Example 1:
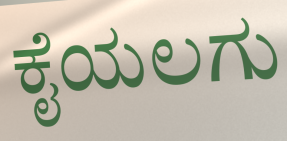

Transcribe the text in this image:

ಕೈಯಲಗು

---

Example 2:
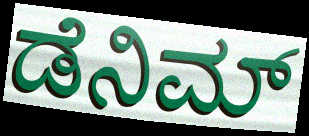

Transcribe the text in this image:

ಡೆನಿಮ್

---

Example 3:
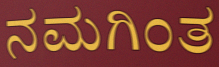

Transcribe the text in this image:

ನಮಗಿಂತ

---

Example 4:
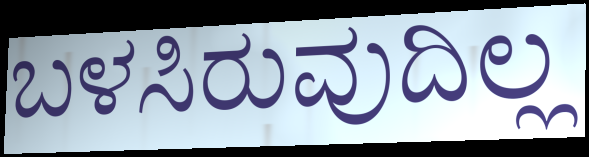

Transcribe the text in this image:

ಬಳಸಿರುವುದಿಲ್ಲ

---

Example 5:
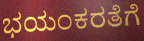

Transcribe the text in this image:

ಭಯಂಕರತೆಗೆ